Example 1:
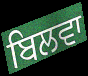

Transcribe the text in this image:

ਬਿਲਵਾ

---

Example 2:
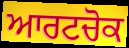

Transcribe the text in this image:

ਆਰਟਚੋਕ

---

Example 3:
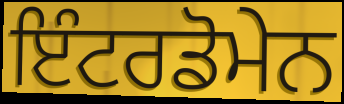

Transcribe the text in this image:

ਇੰਟਰਡੋਮੇਨ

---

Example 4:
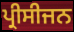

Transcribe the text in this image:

ਪ੍ਰੀਸੀਜਨ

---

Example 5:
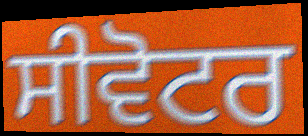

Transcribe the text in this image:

ਸੀਵੋਟਰ